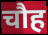
चौह